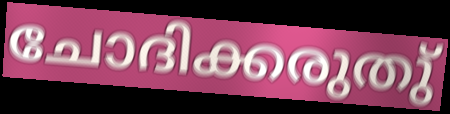
ചോദിക്കരുതു്